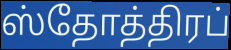
ஸ்தோத்திரப்